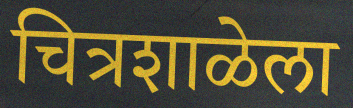
चित्रशाळेला